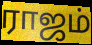
ராஜம்